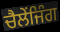
ਚੈਲੇਂਜਿੰਗ